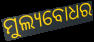
ମୁଲ୍ୟବୋଧର